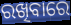
ରଖିବାରେ